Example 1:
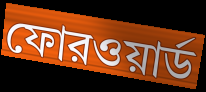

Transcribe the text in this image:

ফোরওয়ার্ড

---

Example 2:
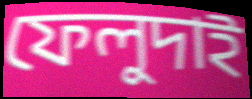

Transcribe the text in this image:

ফেলুদাই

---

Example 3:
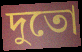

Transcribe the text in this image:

দুতো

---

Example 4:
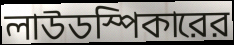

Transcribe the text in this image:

লাউডস্পিকারের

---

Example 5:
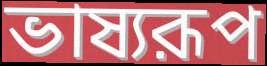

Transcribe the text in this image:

ভাষ্যরূপ